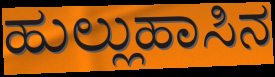
ಹುಲ್ಲುಹಾಸಿನ